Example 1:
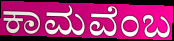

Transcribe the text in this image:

ಕಾಮವೆಂಬ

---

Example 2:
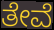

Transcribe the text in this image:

ತೇವೆ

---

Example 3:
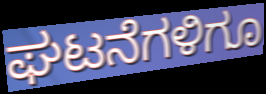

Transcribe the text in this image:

ಘಟನೆಗಳಿಗೂ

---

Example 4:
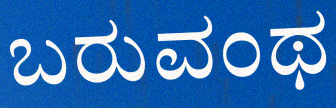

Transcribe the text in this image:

ಬರುವಂಥ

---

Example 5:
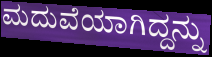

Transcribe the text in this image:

ಮದುವೆಯಾಗಿದ್ದನ್ನು